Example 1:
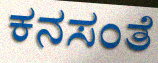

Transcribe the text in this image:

ಕನಸಂತೆ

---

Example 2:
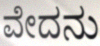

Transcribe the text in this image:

ವೇದನು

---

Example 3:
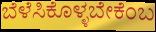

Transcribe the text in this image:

ಬೆಳೆಸಿಕೊಳ್ಳಬೇಕೆಂಬ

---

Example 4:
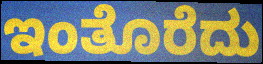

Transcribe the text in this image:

ಇಂತೊರೆದು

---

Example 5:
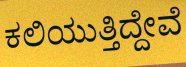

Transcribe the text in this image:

ಕಲಿಯುತ್ತಿದ್ದೇವೆ